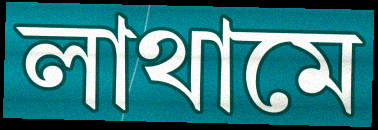
লাথামে